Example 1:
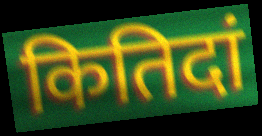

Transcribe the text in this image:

कितिदां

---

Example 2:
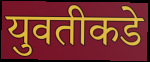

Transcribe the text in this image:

युवतीकडे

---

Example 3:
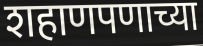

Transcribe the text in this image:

शहाणपणाच्या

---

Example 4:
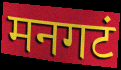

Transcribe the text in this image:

मनगटं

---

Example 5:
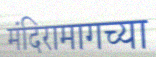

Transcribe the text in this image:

मंदिरामागच्या